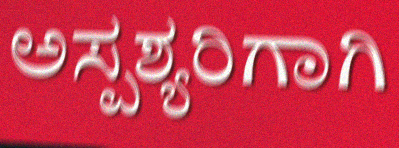
ಅಸ್ಪಶ್ಯರಿಗಾಗಿ